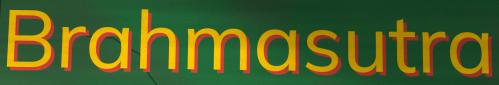
Brahmasutra